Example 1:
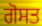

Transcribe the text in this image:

ਗੋਸਤ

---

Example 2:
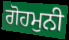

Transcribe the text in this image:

ਗੋਹਮੁਨੀ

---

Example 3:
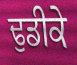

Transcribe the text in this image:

ਢੁਡੀਕੇ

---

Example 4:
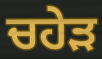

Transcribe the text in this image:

ਚਹੇੜ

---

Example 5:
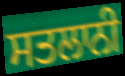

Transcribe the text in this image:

ਸਤਲਾਨੀ